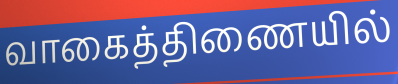
வாகைத்திணையில்